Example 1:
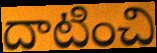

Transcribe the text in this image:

దాటించి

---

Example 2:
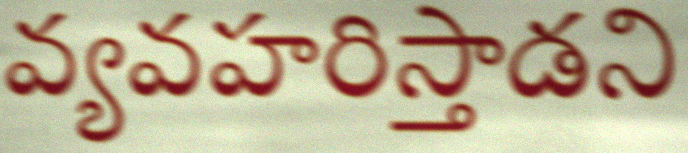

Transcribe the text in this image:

వ్యవహరిస్తాడని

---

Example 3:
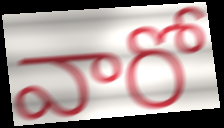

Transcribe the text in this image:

వారో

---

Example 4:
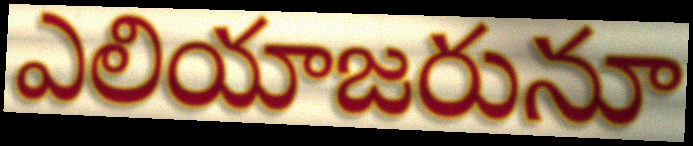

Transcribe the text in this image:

ఎలియాజరునూ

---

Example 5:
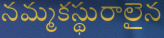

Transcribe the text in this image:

నమ్మకస్థురాలైన